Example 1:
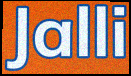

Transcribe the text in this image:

Jalli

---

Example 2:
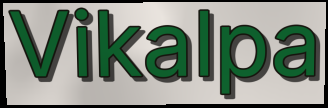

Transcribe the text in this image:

Vikalpa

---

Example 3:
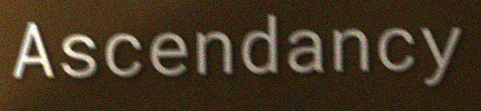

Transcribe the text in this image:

Ascendancy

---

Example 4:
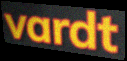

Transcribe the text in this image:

vardt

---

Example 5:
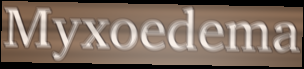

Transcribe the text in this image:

Myxoedema